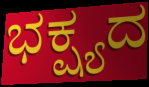
ಭಕ್ಷ್ಯದ